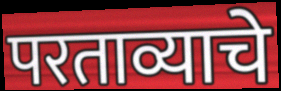
परताव्याचे